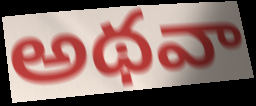
అథవా